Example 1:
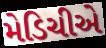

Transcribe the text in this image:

મેડિચીએ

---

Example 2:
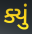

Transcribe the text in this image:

ક્યું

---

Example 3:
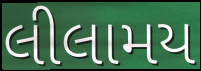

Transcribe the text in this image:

લીલામય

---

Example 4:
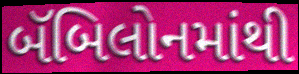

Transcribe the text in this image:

બૅબિલોનમાંથી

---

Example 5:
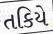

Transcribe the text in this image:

તકિયે